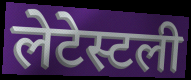
लेटेस्टली